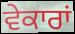
ਵੇਕਾਰਾਂ